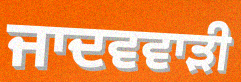
ਜਾਦਵਵਾੜੀ